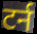
टर्न